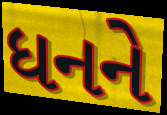
ધનને